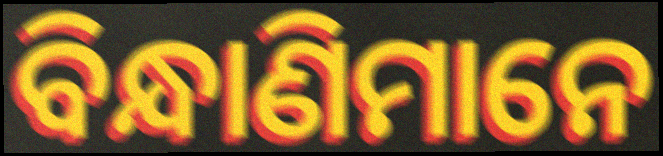
ବିନ୍ଧାଣିମାନେ